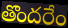
తొందరేం